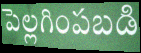
పెల్లగింపబడి